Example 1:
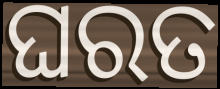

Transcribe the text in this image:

ଘରତ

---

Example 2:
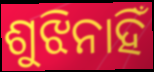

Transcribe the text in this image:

ଶୁଝିନାହିଁ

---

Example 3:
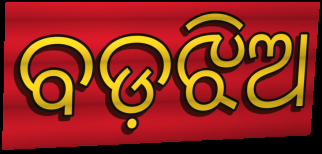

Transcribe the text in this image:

ବଡ଼ଝିଅ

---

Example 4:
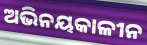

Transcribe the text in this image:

ଅଭିନୟକାଳୀନ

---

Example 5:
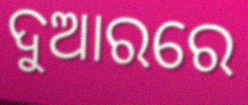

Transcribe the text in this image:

ଦୁଆରରେ